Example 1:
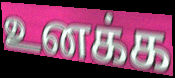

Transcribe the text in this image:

உனக்க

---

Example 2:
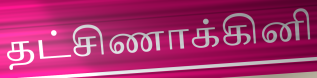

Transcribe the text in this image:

தட்சிணாக்கினி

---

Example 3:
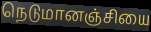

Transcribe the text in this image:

நெடுமானஞ்சியை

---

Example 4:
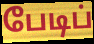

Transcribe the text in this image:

பேடிப்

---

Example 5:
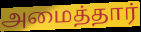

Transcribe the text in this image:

அமைத்தார்